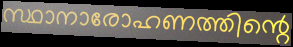
സ്ഥാനാരോഹണത്തിന്റെ